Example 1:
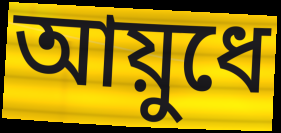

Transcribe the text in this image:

আয়ুধে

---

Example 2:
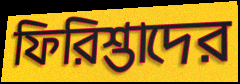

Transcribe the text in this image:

ফিরিশ্তাদের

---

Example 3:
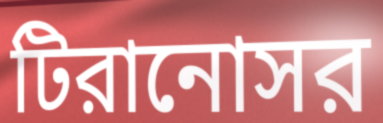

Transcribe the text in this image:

টিরানোসর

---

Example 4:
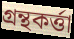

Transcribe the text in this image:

গ্রন্থকর্ত্তা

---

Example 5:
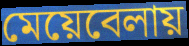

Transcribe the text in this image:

মেয়েবেলায়